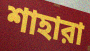
শাহারা